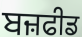
ਬਜ਼ਫੀਡ